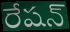
రేషన్